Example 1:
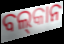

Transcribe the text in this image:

ବଲ୍‌କାନ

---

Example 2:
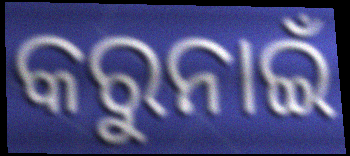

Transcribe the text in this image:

କରୁନାଇଁ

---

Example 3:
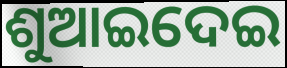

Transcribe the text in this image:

ଶୁଆଇଦେଇ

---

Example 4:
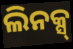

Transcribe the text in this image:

ଲିନକ୍ସ୍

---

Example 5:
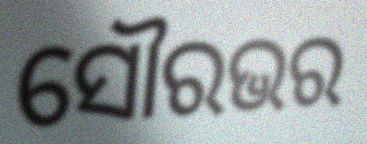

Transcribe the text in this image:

ସୌରଭର